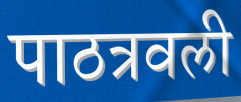
पाठत्रवली